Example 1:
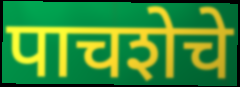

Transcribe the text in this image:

पाचशेचे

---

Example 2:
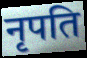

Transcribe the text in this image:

नृपति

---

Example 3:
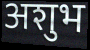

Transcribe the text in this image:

अशुभ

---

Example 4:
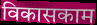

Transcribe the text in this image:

विकासकाम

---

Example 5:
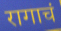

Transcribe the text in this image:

रागाचं